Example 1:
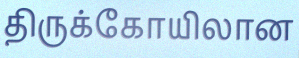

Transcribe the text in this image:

திருக்கோயிலான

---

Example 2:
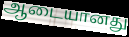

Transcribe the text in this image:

ஆடையானது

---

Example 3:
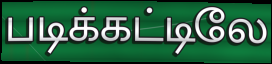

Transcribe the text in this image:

படிக்கட்டிலே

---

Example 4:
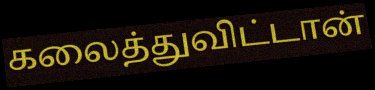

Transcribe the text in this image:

கலைத்துவிட்டான்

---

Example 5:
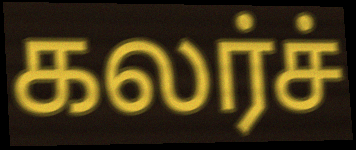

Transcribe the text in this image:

கலர்ச்